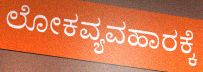
ಲೋಕವ್ಯವಹಾರಕ್ಕೆ